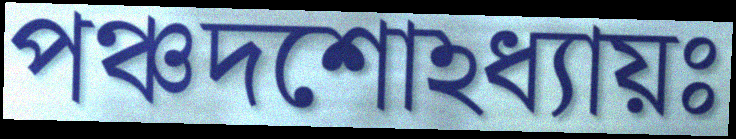
পঞ্চদশোঽধ্যায়ঃ